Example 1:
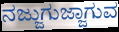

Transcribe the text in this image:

ನಜ್ಜುಗುಜ್ಜಾಗುವ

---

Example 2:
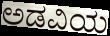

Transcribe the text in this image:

ಅಡವಿಯ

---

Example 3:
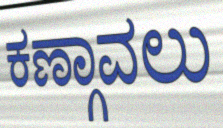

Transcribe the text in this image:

ಕಣ್ಗಾವಲು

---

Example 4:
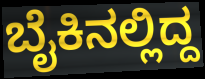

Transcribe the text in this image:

ಬೈಕಿನಲ್ಲಿದ್ದ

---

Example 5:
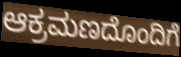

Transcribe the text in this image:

ಆಕ್ರಮಣದೊಂದಿಗೆ